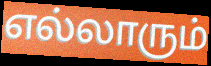
எல்லாரும்